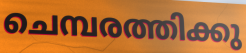
ചെമ്പരത്തിക്കു